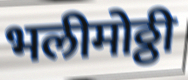
भलीमोठ्ठी